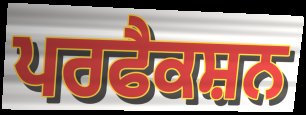
ਪਰਫੈਕਸ਼ਨ